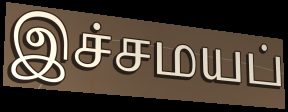
இச்சமயப்